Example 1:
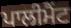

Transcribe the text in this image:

ਪਾਲੀਮੈਂਟ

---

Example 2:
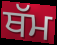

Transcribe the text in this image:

ਥੱਮ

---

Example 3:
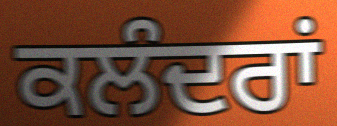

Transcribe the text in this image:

ਕਲੰਦਰਾਂ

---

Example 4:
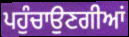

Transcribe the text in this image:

ਪਹੁੰਚਾਉਣਗੀਆਂ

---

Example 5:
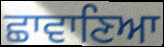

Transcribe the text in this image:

ਛਾਵਾਣਿਆ